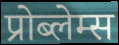
प्रोब्लेम्स